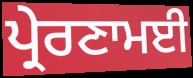
ਪ੍ਰੇਰਣਾਮਈ